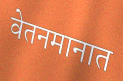
वेतनमानात